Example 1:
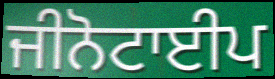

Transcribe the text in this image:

ਜੀਨੋਟਾਈਪ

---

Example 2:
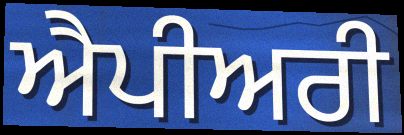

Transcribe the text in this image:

ਐਪੀਅਰੀ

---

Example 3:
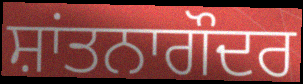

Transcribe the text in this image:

ਸ਼ਾਂਤਨਾਗੌਦਰ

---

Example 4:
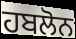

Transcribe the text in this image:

ਹਬਲੋਨ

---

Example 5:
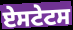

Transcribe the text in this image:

ਏਸਟੇਟਸ